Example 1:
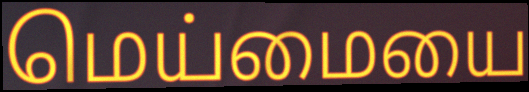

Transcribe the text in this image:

மெய்மையை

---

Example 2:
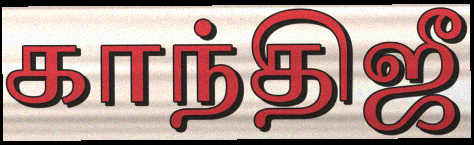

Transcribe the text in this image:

காந்திஜீ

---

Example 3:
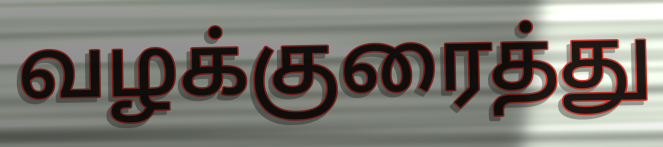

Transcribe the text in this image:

வழக்குரைத்து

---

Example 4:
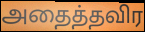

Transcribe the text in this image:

அதைத்தவிர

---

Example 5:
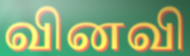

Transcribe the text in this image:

வினவி